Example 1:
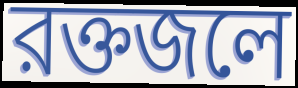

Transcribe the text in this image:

রক্তজলে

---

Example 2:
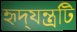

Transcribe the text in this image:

হৃদ্‌যন্ত্রটি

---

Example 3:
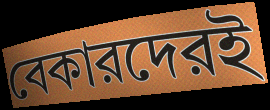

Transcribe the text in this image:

বেকারদেরই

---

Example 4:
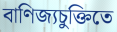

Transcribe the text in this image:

বাণিজ্যচুক্তিতে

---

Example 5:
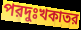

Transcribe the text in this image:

পরদুঃখকাতর